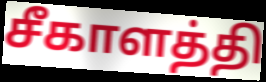
சீகாளத்தி